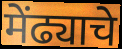
मेंढ्याचे